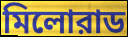
মিলোরাড